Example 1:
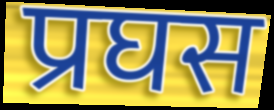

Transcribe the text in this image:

प्रघस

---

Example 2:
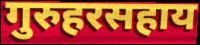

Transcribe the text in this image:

गुरुहरसहाय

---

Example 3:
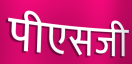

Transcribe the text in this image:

पीएसजी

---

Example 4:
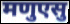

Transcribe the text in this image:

मणुएसु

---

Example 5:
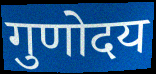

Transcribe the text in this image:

गुणोदय